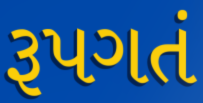
રૂપગતં